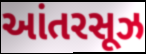
આંતરસૂઝ